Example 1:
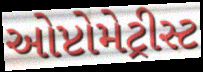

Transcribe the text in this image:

ઓપ્ટોમેટ્રીસ્ટ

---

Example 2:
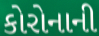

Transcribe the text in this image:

કોરોનાની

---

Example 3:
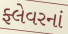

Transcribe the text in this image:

ફ્લેવરનાં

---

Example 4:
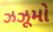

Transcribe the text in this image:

ઝઝૂમો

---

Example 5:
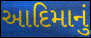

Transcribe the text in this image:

આદિમાનું